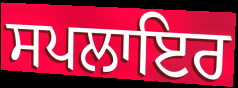
ਸਪਲਾਇਰ